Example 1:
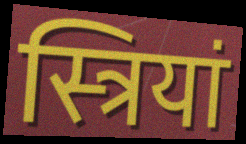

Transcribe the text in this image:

स्त्रियां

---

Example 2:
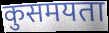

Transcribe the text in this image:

कुसमयता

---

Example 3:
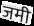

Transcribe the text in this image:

जमी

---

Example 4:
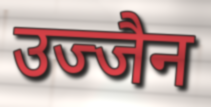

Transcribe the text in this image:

उज्जैन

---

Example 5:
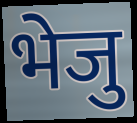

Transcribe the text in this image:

भेजु